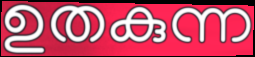
ഉതകുന്ന